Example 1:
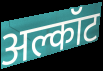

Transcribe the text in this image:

अल्कॉट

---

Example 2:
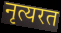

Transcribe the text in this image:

नृत्यरत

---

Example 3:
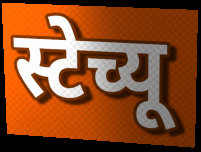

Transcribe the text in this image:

स्टेच्यू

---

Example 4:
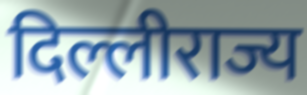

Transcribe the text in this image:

दिल्लीराज्य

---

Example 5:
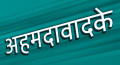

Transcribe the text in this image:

अहमदावादके